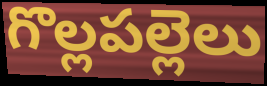
గొల్లపల్లెలు